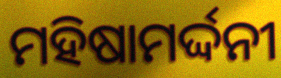
ମହିଷାମର୍ଦ୍ଦନୀ